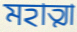
মহাত্মা